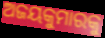
ଅଜୟକୁମାରକୁ